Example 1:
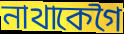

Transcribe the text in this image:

নাথাকেগৈ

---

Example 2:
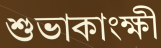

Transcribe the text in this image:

শুভাকাংক্ষী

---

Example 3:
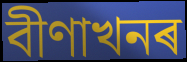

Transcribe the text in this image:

বীণাখনৰ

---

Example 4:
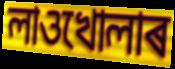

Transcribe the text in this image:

লাওখোলাৰ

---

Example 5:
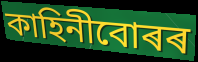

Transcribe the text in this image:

কাহিনীবোৰৰ